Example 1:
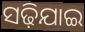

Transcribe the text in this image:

ସଢ଼ିଯାଇ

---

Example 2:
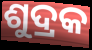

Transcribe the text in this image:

ଶୁଦ୍ରକ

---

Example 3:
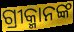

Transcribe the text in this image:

ଗ୍ରୀକ୍ମାନଙ୍କ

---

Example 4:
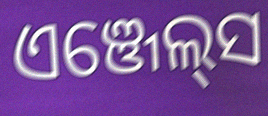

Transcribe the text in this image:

ଏଞ୍ଜେଲ୍‍ସ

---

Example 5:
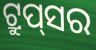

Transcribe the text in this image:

ଟ୍ରୁପ୍‌ସର